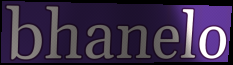
bhanelo